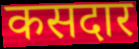
कसदार